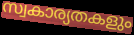
സ്വകാര്യതകളും